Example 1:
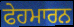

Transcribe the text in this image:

ਫੇਹਮਾਰਨ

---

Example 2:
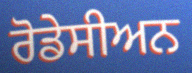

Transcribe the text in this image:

ਰੋਡੇਸੀਅਨ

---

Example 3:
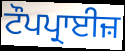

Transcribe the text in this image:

ਟੌਪਪ੍ਰਾਈਜ਼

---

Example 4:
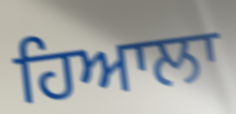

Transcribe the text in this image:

ਹਿਆਲਾ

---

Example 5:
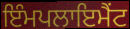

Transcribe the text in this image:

ਇੰਮਪਲਾਇਮੈਂਟ